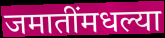
जमातींमधल्या